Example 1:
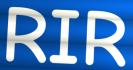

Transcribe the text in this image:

RIR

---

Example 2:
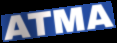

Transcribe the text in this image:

ATMA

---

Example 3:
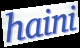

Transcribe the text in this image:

haini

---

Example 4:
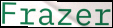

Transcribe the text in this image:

Frazer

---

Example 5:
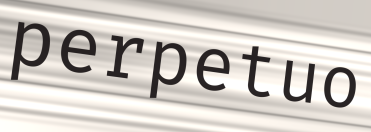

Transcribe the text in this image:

perpetuo